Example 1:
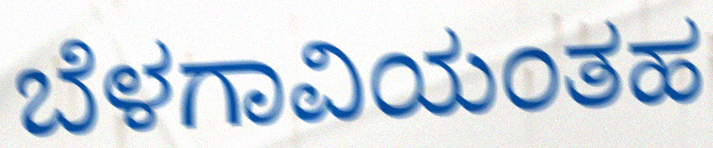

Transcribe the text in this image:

ಬೆಳಗಾವಿಯಂತಹ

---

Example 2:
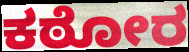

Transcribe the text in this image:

ಕಠೋರ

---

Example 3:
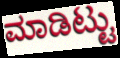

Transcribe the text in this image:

ಮಾಡಿಟ್ಟು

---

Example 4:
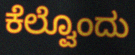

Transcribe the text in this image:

ಕೆಲ್ವೊಂದು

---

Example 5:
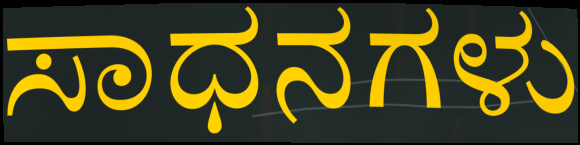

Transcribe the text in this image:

ಸಾಧನಗಳು